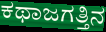
ಕಥಾಜಗತ್ತಿನ